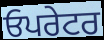
ਓਪਰੇਟਰ